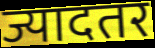
ज्यादतर